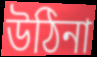
উঠিনা